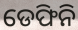
ଡେଫିନି